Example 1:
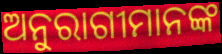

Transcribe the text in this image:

ଅନୁରାଗୀମାନଙ୍କ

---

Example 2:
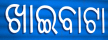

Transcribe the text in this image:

ଖାଇବାଟା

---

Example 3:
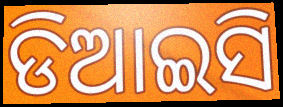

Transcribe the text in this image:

ଡିଆଇସି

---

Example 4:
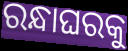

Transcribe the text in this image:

ରନ୍ଧାଘରକୁ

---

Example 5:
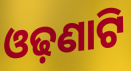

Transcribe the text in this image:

ଓଢ଼ଣାଟି